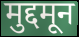
मुद्दमून